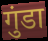
गुंडा